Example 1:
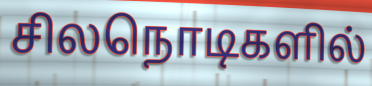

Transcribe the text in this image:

சிலநொடிகளில்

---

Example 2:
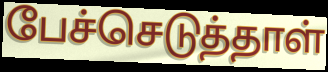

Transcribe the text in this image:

பேச்செடுத்தாள்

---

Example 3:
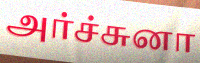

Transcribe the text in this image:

அர்ச்சுனா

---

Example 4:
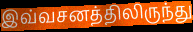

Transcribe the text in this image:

இவ்வசனத்திலிருந்து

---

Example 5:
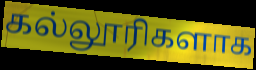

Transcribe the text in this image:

கல்லூரிகளாக